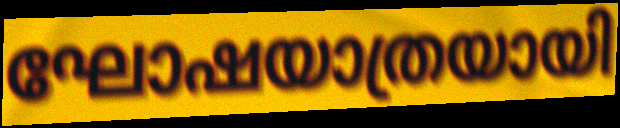
ഘോഷയാത്രയായി